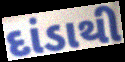
દાંડાથી